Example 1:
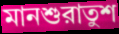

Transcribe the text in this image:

মানশুরাতুশ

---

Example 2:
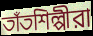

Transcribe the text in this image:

তাঁতশিল্পীরা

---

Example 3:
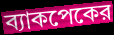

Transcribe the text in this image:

ব্যাকপেকের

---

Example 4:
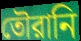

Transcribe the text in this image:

তৌরানি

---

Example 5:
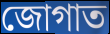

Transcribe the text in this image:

জোগাত